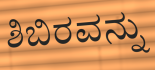
ಶಿಬಿರವನ್ನು